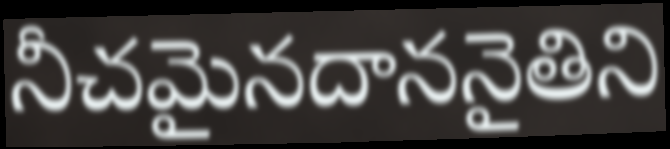
నీచమైనదాననైతిని